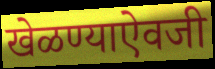
खेळण्याऐवजी